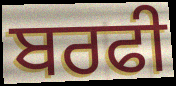
ਬਰਫੀ